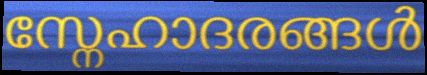
സ്നേഹാദരങ്ങൾ